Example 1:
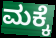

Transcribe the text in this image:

ಮಕ್ಕೆ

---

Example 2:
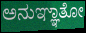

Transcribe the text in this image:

ಅನುಞ್ಞಾತೋ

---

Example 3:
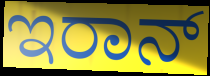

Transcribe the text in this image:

ಇರಾನ್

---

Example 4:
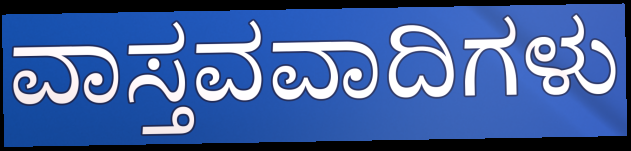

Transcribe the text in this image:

ವಾಸ್ತವವಾದಿಗಳು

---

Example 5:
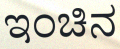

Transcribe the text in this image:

ಇಂಚಿನ